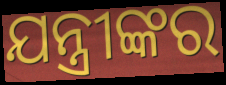
ଯନ୍ତ୍ରୀଙ୍କର